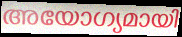
അയോഗ്യമായി